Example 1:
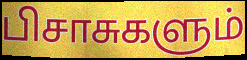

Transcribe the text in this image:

பிசாசுகளும்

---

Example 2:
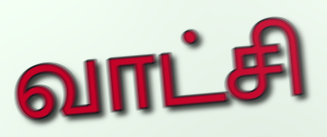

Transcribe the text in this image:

வாட்சி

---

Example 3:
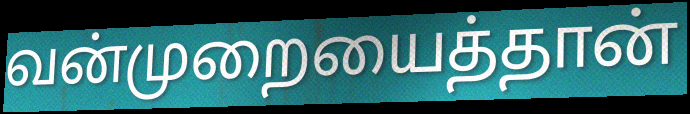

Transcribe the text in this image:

வன்முறையைத்தான்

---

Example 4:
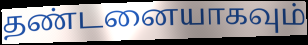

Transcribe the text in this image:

தண்டனையாகவும்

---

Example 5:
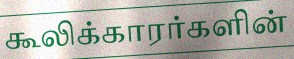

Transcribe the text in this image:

கூலிக்காரர்களின்